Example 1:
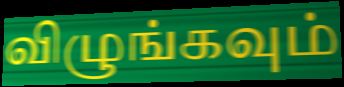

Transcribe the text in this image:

விழுங்கவும்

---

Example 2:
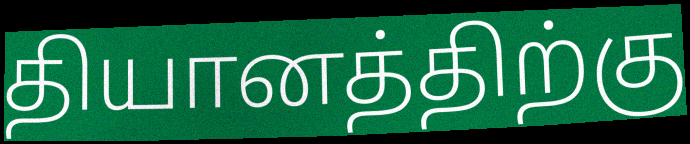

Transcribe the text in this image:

தியானத்திற்கு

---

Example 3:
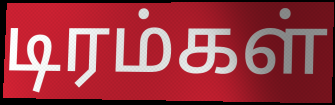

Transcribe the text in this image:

டிரம்கள்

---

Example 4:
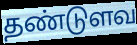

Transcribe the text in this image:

தண்டுளவ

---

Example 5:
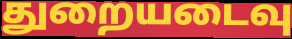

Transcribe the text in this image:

துறையடைவு